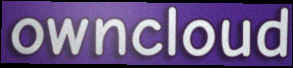
owncloud